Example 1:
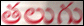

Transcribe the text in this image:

తలుగు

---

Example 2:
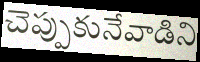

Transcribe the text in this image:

చెప్పుకునేవాడిని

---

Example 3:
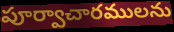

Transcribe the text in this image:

పూర్వాచారములను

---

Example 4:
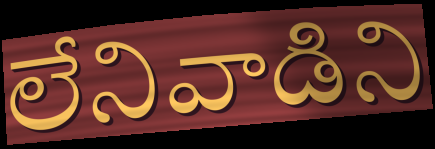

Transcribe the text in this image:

లేనివాడిని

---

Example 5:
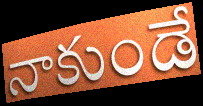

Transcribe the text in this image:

నాకుండే